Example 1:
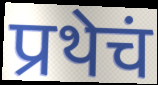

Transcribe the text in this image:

प्रथेचं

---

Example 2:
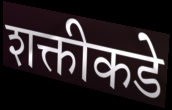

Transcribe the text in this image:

शक्तीकडे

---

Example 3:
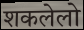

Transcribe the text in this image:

शकलेलो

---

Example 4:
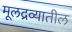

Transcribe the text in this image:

मूलद्रव्यातील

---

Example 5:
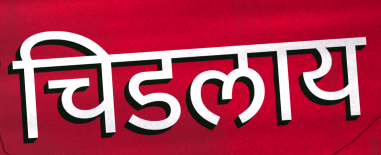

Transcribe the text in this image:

चिडलाय